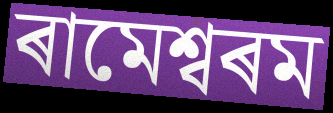
ৰামেশ্বৰম